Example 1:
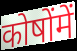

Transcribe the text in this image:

कोषोंमें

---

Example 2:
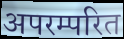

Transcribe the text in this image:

अपरम्परित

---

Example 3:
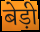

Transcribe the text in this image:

बेड़ी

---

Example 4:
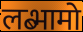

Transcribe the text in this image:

लब्भामो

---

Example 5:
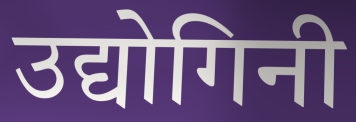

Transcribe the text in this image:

उद्योगिनी